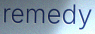
remedy